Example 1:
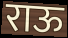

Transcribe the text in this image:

राऊ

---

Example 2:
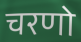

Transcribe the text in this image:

चरणो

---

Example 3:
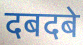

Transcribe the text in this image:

दबदबे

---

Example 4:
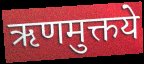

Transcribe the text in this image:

ऋणमुक्तये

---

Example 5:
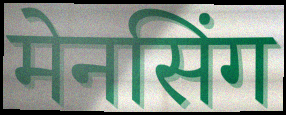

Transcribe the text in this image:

मेनसिंग